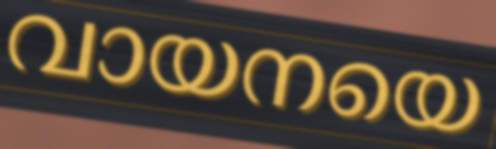
വായനയെ